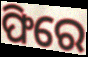
ଫିରେ